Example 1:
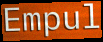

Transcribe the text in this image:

Empul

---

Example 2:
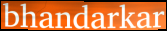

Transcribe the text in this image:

bhandarkar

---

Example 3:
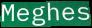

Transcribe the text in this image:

Meghes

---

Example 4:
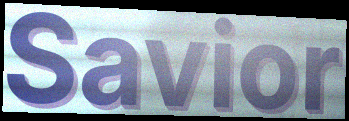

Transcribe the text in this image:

Savior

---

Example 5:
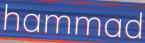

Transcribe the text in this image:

hammad